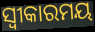
ସ୍ଵୀକାରମୟ